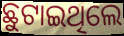
ଛୁଟାଇଥିଲେ